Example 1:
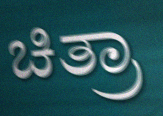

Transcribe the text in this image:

ಚಿತ್ರಾ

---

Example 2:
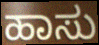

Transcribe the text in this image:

ಹಾಸು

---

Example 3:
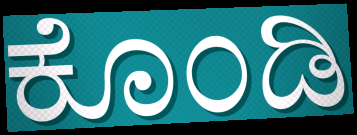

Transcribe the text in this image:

ಕೊಂಡಿ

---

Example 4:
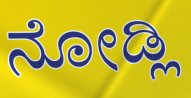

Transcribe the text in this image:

ನೋಡ್ಲಿ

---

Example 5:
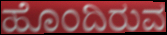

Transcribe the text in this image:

ಹೊಂದಿರುವ